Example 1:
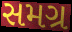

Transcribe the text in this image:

સમગ્ર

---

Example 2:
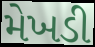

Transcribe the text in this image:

મેખડી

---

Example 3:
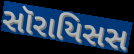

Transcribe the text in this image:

સૉરાયિસસ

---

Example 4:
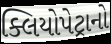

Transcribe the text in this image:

ક્લિયોપેટ્રાનો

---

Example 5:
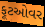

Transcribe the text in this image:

ફૂટઓવર